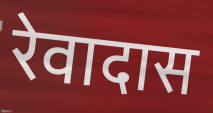
रेवादास